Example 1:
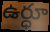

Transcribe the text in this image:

ఉర్ధూ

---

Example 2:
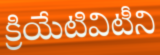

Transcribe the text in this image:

క్రియేటివిటీని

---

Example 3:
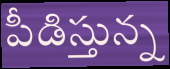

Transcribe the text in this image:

పీడిస్తున్న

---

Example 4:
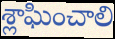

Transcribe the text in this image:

శ్లాఘించాలి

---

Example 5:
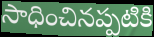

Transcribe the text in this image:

సాధించినప్పటికి